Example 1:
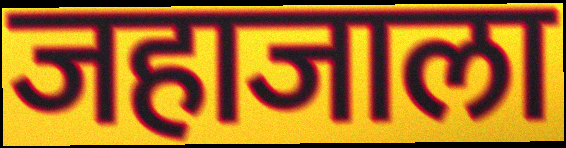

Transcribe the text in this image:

जहाजाला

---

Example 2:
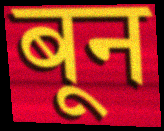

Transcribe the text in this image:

बून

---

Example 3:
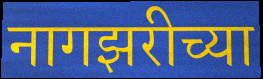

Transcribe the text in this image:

नागझरीच्या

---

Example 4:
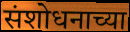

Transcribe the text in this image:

संशोधनाच्या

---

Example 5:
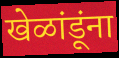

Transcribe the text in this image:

खेळांडूंना